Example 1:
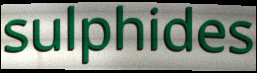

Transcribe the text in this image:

sulphides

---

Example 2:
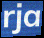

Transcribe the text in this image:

rja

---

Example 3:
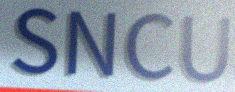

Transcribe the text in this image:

SNCU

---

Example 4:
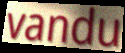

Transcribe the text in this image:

vandu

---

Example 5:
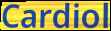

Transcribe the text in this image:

Cardiol